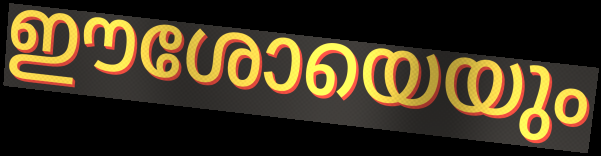
ഈശോയെയും